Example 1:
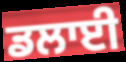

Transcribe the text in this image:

ਡਲਾਈ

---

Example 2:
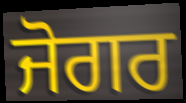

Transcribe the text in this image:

ਜੋਗਰ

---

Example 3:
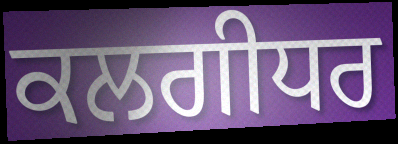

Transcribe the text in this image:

ਕਲਗੀਧਰ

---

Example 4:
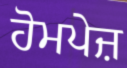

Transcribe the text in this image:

ਹੋਮਪੇਜ਼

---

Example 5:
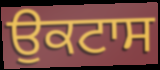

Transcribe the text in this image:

ਉਕਟਾਸ